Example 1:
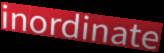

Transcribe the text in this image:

inordinate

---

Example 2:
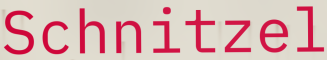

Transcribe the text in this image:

Schnitzel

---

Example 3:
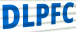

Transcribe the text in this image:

DLPFC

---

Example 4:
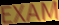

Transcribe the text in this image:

EXAM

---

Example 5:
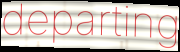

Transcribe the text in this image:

departing